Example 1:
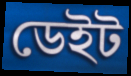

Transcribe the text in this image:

ডেইট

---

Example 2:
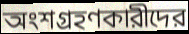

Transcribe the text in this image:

অংশগ্রহণকারীদের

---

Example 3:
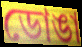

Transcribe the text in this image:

ডোঙা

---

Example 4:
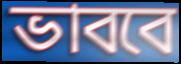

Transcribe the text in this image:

ভাববে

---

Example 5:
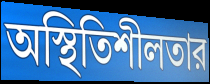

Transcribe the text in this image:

অস্থিতিশীলতার